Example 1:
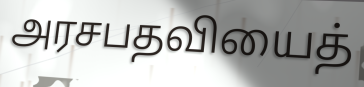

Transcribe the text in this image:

அரசபதவியைத்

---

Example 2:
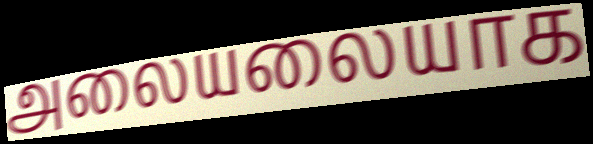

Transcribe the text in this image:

அலையலையாக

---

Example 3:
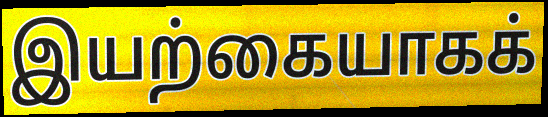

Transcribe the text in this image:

இயற்கையாகக்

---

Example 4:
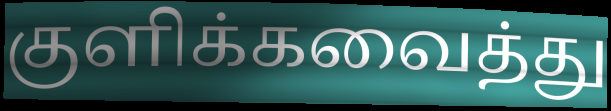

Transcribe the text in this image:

குளிக்கவைத்து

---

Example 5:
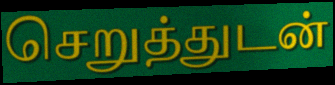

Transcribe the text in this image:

செறுத்துடன்